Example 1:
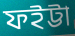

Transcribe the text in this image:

ফইট্টা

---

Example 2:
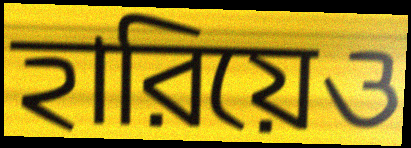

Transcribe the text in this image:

হারিয়েও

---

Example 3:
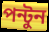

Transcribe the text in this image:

পন্টুন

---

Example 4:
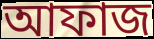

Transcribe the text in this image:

আফাজ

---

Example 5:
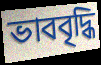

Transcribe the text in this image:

ভাববৃদ্ধি